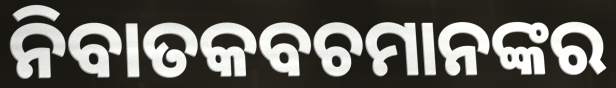
ନିବାତକବଚମାନଙ୍କର